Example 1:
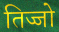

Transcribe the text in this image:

तिज्जो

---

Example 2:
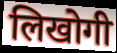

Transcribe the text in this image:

लिखोगी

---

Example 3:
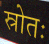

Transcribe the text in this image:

स्रोतः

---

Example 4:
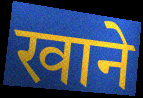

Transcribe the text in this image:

खाने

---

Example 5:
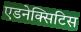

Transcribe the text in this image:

एडनेक्सिटिस